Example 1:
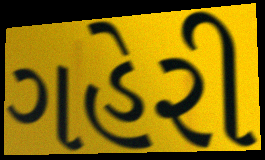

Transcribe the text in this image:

ગહેરી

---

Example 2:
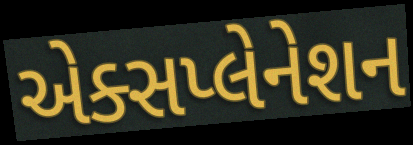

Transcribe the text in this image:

એક્સપ્લેનેશન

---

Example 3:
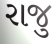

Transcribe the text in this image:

રાજુ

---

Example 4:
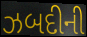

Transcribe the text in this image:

ઝબદીની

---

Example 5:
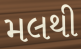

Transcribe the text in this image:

મલથી